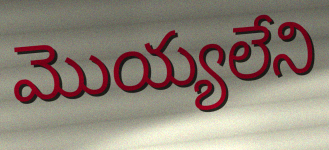
మొయ్యలేని